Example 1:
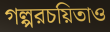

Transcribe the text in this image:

গল্পরচয়িতাও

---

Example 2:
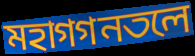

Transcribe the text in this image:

মহাগগনতলে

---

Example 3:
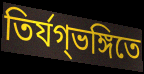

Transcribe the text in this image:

তির্যগ্ভঙ্গিতে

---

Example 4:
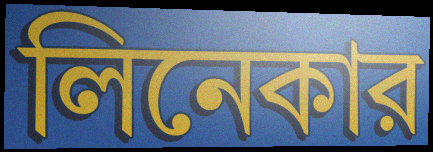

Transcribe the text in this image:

লিনেকার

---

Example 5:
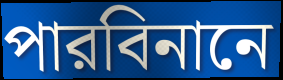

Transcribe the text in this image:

পারবিনানে